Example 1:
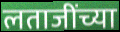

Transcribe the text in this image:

लताजींच्या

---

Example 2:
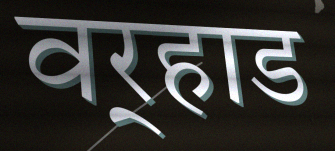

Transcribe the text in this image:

वर्हाड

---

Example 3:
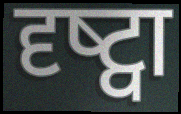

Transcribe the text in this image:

दृष्ट्वा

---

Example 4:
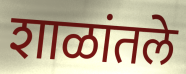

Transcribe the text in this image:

शाळांतले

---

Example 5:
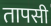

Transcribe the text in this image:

तापसी